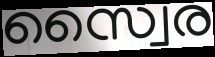
സ്വൈര